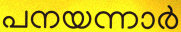
പനയന്നാർ